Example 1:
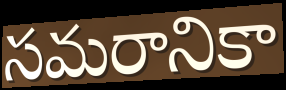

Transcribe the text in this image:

సమరానికా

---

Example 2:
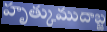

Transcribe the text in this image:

హృత్కుముదాబ్జ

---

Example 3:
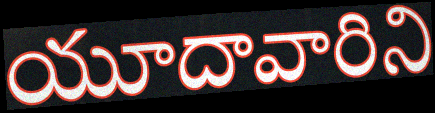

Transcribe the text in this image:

యూదావారిని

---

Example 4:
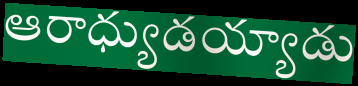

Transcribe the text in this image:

ఆరాధ్యుడయ్యాడు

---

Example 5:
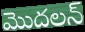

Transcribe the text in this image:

మొదలన్